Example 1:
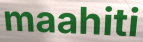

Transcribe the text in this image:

maahiti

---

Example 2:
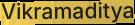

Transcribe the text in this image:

Vikramaditya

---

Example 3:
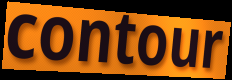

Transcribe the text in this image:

contour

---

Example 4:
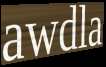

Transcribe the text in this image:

awdla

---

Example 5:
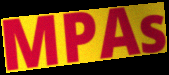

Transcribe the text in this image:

MPAs